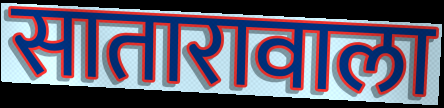
सातारावाला